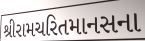
શ્રીરામચરિતમાનસના